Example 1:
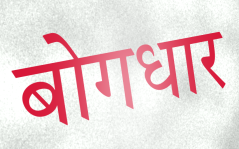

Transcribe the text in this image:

बोगधार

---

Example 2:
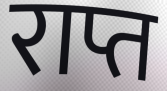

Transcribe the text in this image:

राप्त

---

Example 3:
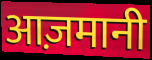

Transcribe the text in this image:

आज़मानी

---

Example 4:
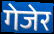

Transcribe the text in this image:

गेजेर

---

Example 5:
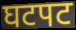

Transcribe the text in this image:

घटपट